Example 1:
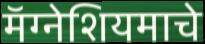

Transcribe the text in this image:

मॅग्नेशियमाचे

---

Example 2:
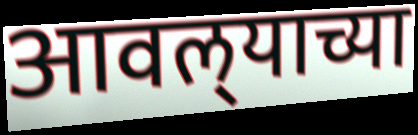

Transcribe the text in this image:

आवल्याच्या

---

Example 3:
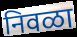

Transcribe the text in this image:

निवळा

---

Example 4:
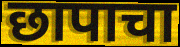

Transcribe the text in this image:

छापाचा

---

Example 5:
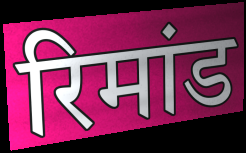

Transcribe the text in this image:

रिमांड